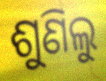
ଶୁଣିଲୁ